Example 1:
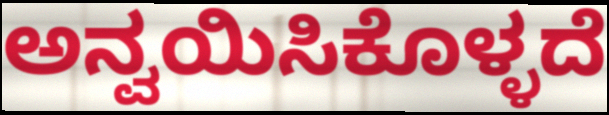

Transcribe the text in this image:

ಅನ್ವಯಿಸಿಕೊಳ್ಳದೆ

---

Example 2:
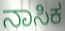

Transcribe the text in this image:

ನಾಸಿಕ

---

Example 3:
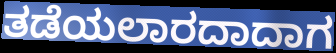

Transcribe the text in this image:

ತಡೆಯಲಾರದಾದಾಗ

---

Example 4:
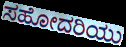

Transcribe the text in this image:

ಸಹೋದರಿಯು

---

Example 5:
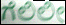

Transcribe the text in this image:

ಗೆಲಿಲೀ